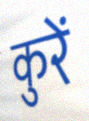
कुरें